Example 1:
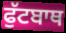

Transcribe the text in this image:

ਫੁੱਟਬਾਥ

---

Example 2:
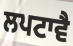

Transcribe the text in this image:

ਲਪਟਾਵੈ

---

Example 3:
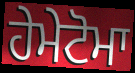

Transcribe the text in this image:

ਹੇਮੇਟੋਮਾ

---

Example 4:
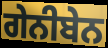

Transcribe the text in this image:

ਗੇਨੀਬੇਨ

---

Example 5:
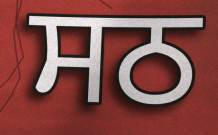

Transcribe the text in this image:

ਸਠ